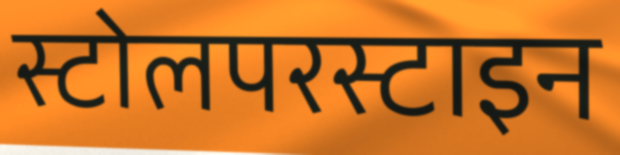
स्टोलपरस्टाइन